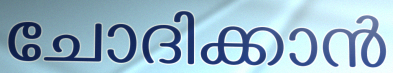
ചോദിക്കാൻ